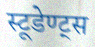
स्टूडेण्ट्स